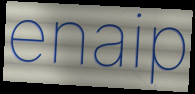
enaip